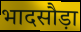
भादसौड़ा